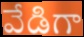
వేడిగా